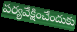
పర్యవేక్షించేందుకు